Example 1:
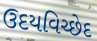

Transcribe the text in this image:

ઉદયવિચ્છેદ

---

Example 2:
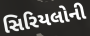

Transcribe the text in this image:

સિરિયલોની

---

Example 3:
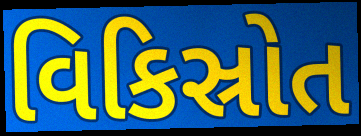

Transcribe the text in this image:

વિકિસ્રોત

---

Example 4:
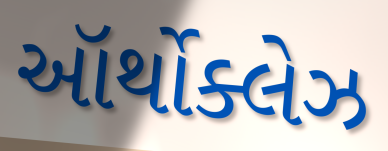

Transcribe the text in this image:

ઑર્થોક્લેઝ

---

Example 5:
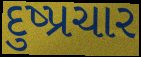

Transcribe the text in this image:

દુષ્પ્રચાર